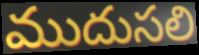
ముదుసలి